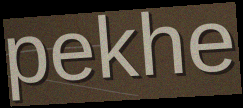
pekhe